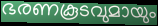
ഭരണകൂടവുമായും